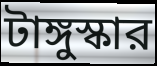
টাঙ্গুস্কার